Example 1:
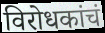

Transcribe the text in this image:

विरोधकांचं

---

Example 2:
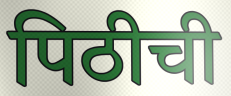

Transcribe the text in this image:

पिठीची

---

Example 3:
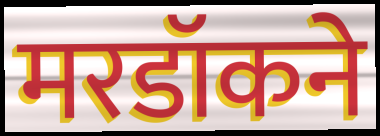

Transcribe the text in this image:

मरडॉकने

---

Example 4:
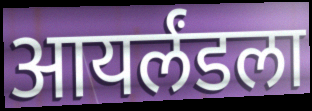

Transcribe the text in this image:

आयर्लंडला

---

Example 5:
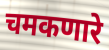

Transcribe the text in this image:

चमकणारे